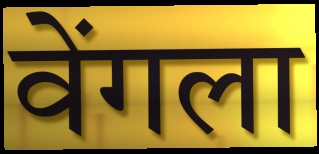
वेंगला